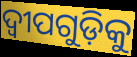
ଦ୍ୱୀପଗୁଡ଼ିକୁ